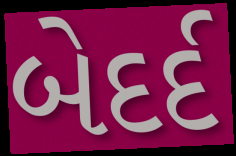
બેદર્દ